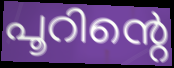
പൂറിന്റെ